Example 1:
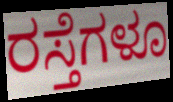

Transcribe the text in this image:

ರಸ್ತೆಗಳೂ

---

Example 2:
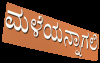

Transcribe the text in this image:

ಮಳೆಯನ್ನಾಗಲಿ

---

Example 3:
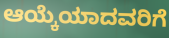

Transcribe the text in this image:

ಆಯ್ಕೆಯಾದವರಿಗೆ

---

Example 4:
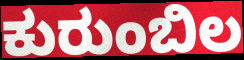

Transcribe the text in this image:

ಕುರುಂಬಿಲ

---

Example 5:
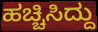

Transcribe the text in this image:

ಹಚ್ಚಿಸಿದ್ದು